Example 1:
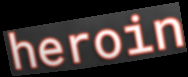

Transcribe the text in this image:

heroin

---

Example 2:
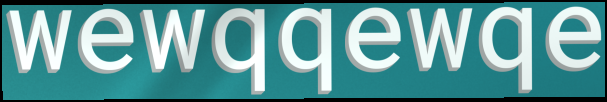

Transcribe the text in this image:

wewqqewqe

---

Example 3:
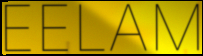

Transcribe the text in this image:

EELAM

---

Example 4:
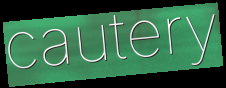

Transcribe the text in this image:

cautery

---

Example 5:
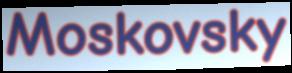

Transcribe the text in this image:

Moskovsky